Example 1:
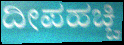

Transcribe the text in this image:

ದೀಪಹಚ್ಚಿ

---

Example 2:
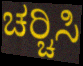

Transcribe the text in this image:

ಚರ‍್ಚಿಸಿ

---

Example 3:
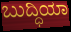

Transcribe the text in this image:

ಬುದ್ಧಿಯಾ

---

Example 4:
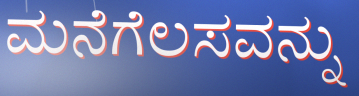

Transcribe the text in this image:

ಮನೆಗೆಲಸವನ್ನು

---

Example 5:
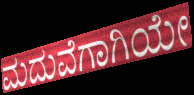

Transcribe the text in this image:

ಮದುವೆಗಾಗಿಯೇ